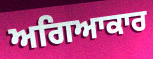
ਅਗਿਆਕਾਰ